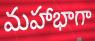
మహాభాగా